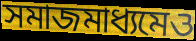
সমাজমাধ্যমেও